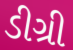
ડીગ્રી